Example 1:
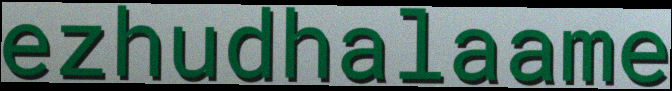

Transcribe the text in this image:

ezhudhalaame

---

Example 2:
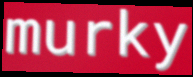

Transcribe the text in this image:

murky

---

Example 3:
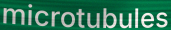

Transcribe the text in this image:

microtubules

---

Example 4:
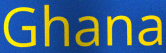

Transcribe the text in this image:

Ghana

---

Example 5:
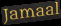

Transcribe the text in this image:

Jamaal